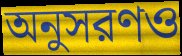
অনুসরণও